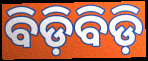
ବିଡ଼ିବିଡ଼ି